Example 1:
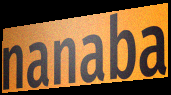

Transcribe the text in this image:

nanaba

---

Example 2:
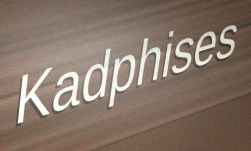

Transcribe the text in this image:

Kadphises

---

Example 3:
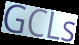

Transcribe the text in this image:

GCLs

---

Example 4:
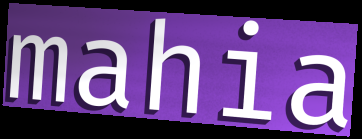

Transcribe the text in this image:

mahia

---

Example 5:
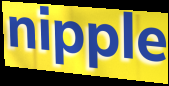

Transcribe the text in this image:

nipple